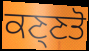
ਕਣ੍ਣਤੋ